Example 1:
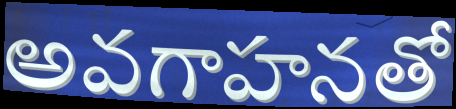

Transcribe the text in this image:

అవగాహనతో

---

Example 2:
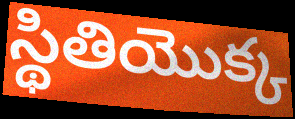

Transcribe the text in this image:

స్థితియొక్క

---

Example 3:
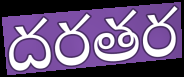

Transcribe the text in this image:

దరతర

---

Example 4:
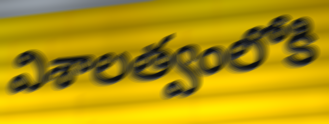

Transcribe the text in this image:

విశాలత్వంలోకి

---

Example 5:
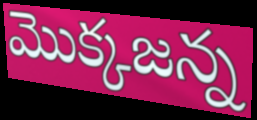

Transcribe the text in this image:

మొక్కజన్న